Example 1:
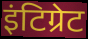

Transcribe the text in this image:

इंटिग्रेट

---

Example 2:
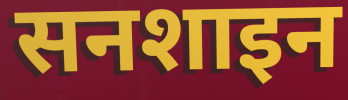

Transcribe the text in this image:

सनशाइन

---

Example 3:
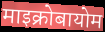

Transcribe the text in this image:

माइक्रोबायोम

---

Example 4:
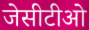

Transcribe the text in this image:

जेसीटीओ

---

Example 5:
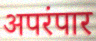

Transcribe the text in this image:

अपरंपार